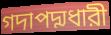
গদাপদ্মধারী